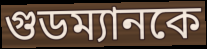
গুডম্যানকে